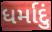
ધર્માદું